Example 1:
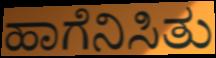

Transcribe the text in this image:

ಹಾಗೆನಿಸಿತು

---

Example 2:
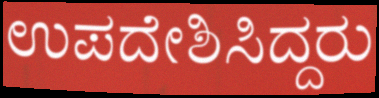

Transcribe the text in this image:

ಉಪದೇಶಿಸಿದ್ದರು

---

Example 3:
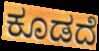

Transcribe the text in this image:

ಕೂಡದೆ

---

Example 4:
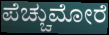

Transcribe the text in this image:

ಪೆಚ್ಚುಮೋರೆ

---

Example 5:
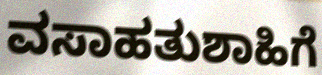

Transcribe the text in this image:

ವಸಾಹತುಶಾಹಿಗೆ